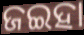
ଜଇହା